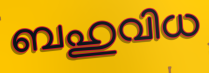
ബഹുവിധ